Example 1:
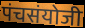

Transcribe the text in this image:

पंचसंयोजी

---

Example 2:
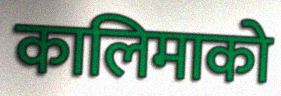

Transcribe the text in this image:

कालिमाको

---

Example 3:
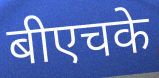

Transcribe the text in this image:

बीएचके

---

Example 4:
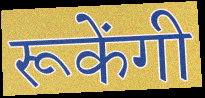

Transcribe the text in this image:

रूकेंगी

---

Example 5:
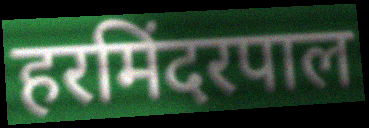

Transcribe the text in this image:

हरमिंदरपाल